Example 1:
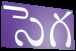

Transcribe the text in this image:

సెగ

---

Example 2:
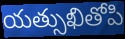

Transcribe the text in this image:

యత్సుఖితోపి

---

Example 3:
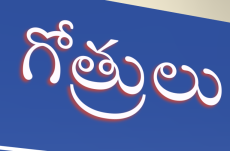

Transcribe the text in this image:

గోత్రులు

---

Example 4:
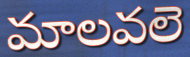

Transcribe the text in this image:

మాలవలె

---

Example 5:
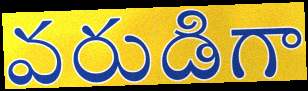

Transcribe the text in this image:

వరుడిగా